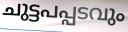
ചുട്ടപപ്പടവും